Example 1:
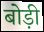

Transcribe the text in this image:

बोड़ी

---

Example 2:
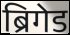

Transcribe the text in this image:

ब्रिगेड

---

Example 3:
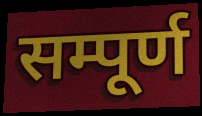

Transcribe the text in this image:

सम्पूर्ण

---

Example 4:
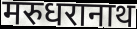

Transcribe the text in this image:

मरुधरानाथ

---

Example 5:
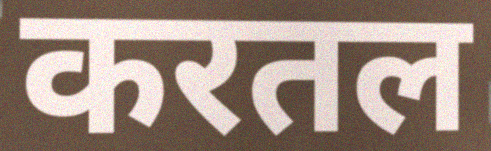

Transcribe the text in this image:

करतल